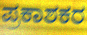
ಪ್ರಕಾಶಕರ